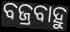
ବଜ୍ରବାହୁ